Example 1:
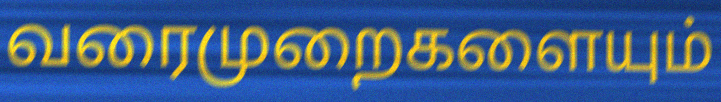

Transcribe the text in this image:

வரைமுறைகளையும்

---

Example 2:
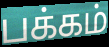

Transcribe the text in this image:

பக்கம்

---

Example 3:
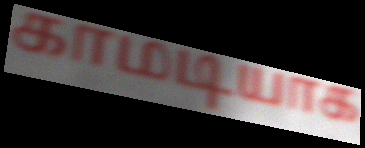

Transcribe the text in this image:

காமடியாக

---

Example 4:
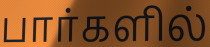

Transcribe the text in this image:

பார்களில்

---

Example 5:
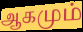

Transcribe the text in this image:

ஆகமும்